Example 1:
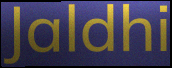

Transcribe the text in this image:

Jaldhi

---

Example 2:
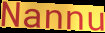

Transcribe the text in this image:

Nannu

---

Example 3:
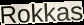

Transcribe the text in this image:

Rokkas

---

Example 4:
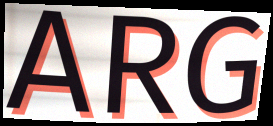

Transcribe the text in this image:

ARG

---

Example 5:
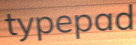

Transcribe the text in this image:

typepad